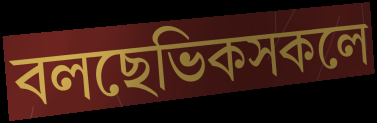
বলছেভিকসকলে